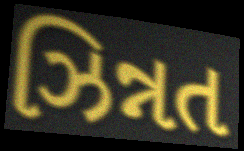
ઝિન્નત